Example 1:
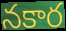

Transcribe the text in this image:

నకార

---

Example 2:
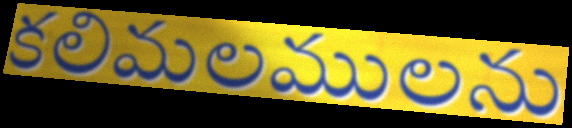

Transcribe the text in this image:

కలిమలములను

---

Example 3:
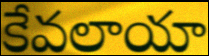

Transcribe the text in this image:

కేవలాయా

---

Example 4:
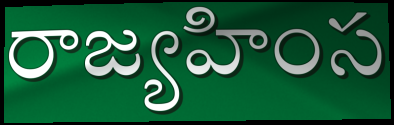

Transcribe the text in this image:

రాజ్యహింస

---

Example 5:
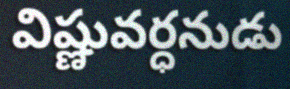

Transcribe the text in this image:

విష్ణువర్ధనుడు